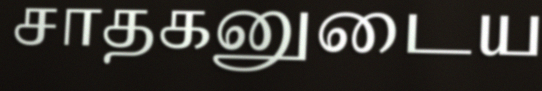
சாதகனுடைய